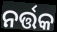
ନର୍ତ୍ତକ